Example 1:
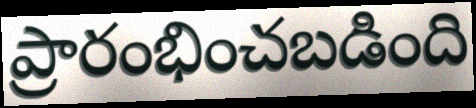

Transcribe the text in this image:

ప్రారంభించబడింది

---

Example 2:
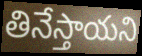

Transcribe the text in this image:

తినేస్తాయని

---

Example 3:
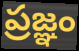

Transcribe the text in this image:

ప్రజ్ఞం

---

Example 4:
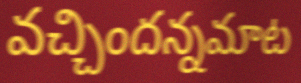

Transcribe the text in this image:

వచ్చిందన్నమాట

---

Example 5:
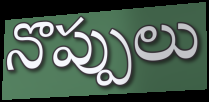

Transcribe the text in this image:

నొప్పులు